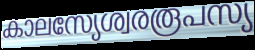
കാലസ്യേശ്വരരൂപസ്യ